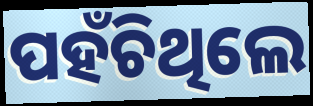
ପହଁଚିଥିଲେ